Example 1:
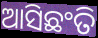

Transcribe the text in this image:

ଆସିଛଂତି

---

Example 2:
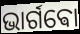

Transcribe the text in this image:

ଭାର୍ଗଵୋ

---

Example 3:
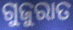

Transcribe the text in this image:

ଗୁଜୁରାତ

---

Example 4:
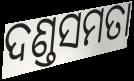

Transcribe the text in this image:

ଦଣ୍ଡସମତା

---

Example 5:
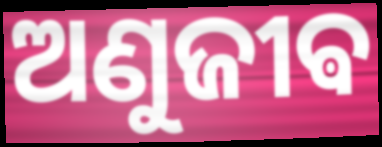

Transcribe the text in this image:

ଅଣୁଜୀଵ